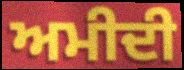
ਅਮੀਦੀ